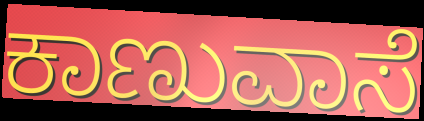
ಕಾಣುವಾಸೆ